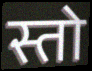
स्तो